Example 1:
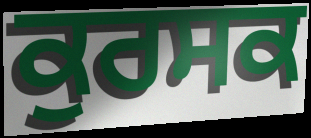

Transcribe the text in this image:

ਕੁਰਸਕ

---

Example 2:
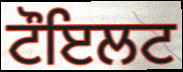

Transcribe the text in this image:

ਟੌਇਲਟ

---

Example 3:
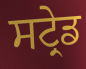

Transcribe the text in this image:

ਸਟ੍ਰੇਡ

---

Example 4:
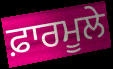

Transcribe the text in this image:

ਫ਼ਾਰਮੂਲੇ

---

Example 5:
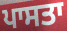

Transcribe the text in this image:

ਪਾਸਤਾ